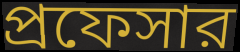
প্রফেসার